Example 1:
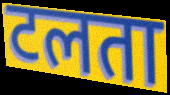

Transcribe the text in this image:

टलता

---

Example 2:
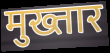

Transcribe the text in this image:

मुख्‍तार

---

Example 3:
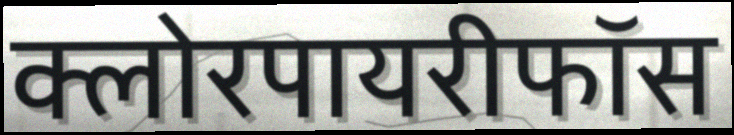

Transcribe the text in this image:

क्लोरपायरीफॉस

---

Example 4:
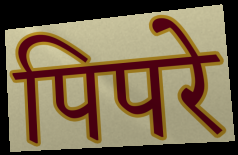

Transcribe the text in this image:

पिपरे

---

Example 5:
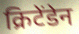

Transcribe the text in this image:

क्रिटेंडेन